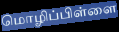
மொழிப்பிள்ளை